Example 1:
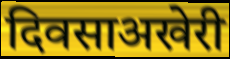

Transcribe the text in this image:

दिवसाअखेरी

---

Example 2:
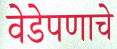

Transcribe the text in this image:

वेडेपणाचे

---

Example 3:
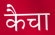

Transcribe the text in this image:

कैचा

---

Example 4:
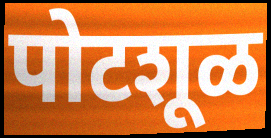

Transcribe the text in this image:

पोटशूळ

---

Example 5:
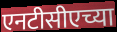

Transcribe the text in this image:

एनटीसीएच्या